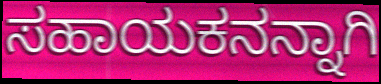
ಸಹಾಯಕನನ್ನಾಗಿ